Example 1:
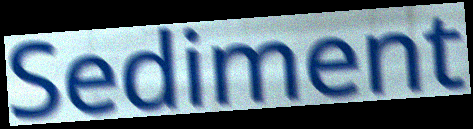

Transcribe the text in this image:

Sediment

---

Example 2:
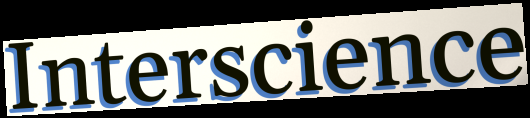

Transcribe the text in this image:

Interscience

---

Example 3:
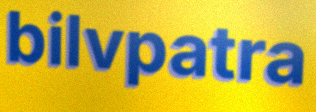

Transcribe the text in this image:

bilvpatra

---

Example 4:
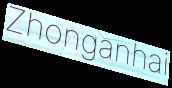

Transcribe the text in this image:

Zhonganhai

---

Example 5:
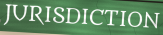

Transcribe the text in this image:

JURISDICTION